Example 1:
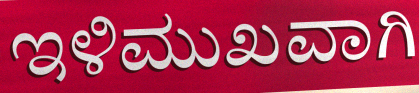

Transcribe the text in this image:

ಇಳಿಮುಖವಾಗಿ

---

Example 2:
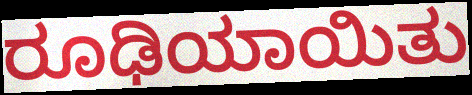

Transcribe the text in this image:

ರೂಢಿಯಾಯಿತು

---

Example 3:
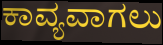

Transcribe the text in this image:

ಕಾವ್ಯವಾಗಲು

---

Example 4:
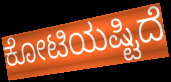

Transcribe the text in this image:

ಕೋಟಿಯಷ್ಟಿದೆ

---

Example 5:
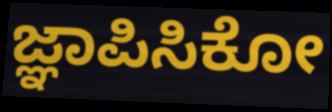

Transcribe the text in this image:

ಜ್ಞಾಪಿಸಿಕೋ